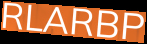
RLARBP